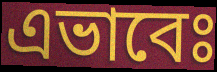
এভাবেঃ